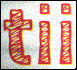
tii